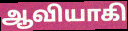
ஆவியாகி